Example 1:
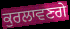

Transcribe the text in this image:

ਕੁਰਲਾਵਣਗੇ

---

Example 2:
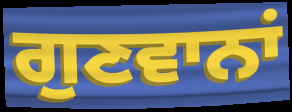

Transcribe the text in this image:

ਗੁਣਵਾਨਾਂ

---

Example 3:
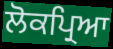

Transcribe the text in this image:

ਲੋਕਪ੍ਰਿਆ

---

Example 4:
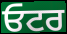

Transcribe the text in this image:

ਓਟਰ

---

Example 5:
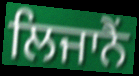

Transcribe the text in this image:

ਲਿਜਾਨੈਂ